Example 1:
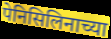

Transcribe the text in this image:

पेनिसिलिनाच्या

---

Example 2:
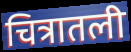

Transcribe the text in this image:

चित्रातली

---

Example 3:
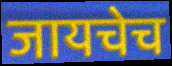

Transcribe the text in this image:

जायचेच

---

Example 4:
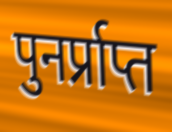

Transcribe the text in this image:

पुनर्प्राप्त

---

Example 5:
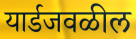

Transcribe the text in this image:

यार्डजवळील